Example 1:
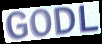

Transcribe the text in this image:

GODL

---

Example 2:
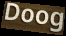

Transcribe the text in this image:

Doog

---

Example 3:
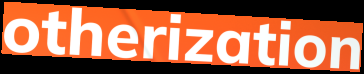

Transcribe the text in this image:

otherization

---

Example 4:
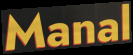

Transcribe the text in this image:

Manal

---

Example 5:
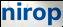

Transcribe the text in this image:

nirop